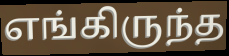
எங்கிருந்த